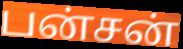
பன்சன்